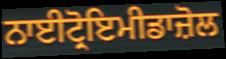
ਨਾਈਟ੍ਰੋਇਮੀਡਾਜ਼ੋਲ